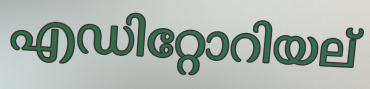
എഡിറ്റോറിയല്